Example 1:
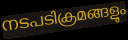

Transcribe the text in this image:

നടപടിക്രമങ്ങളും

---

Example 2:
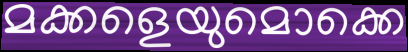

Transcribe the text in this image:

മക്കളെയുമൊക്കെ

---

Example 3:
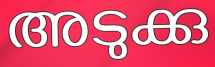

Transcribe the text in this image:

അടുക്കു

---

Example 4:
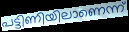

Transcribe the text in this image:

പട്ടിണിയിലാണെന്ന്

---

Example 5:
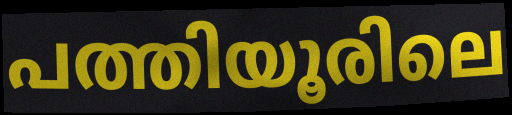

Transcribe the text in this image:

പത്തിയൂരിലെ